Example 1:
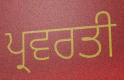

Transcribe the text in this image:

ਪ੍ਰਵਰਤੀ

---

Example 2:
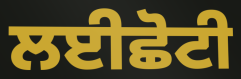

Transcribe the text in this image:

ਲਈਛੋਟੀ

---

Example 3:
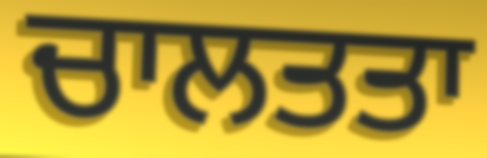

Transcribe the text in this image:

ਚਾਲਤਤਾ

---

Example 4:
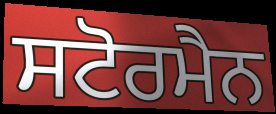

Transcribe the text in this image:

ਸਟੋਰਮੈਨ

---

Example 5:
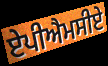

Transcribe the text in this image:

ਏਪੀਐਮਸੀਏ